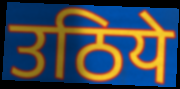
उठिये